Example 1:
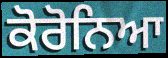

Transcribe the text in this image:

ਕੋਰੋਨਿਆ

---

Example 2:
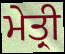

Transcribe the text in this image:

ਮੇਤ੍ਰੀ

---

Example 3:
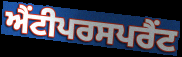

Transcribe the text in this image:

ਐਂਟੀਪਰਸਪਰੈਂਟ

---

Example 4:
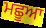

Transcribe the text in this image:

ਮਛੂਆ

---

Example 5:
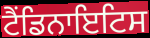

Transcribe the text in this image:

ਟੈਂਡਿਨਾਇਟਿਸ